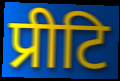
प्रीटि